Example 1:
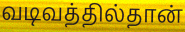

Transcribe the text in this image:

வடிவத்தில்தான்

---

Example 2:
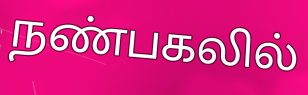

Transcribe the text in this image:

நண்பகலில்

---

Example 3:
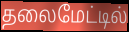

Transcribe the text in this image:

தலைமேட்டில்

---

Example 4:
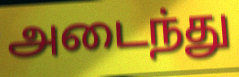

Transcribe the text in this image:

அடைந்து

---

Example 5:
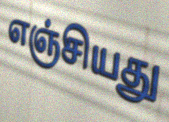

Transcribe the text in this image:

எஞ்சியது